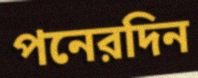
পনেরদিন